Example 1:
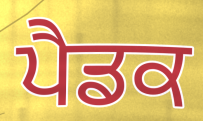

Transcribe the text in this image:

ਪੈਡਕ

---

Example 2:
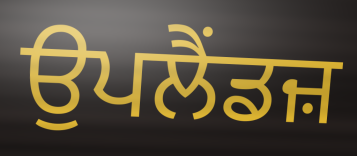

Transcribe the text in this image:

ਉਪਲੈਂਡਜ਼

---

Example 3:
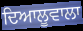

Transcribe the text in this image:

ਦਿਆਲੂਵਾਲਾ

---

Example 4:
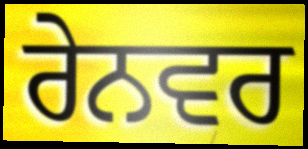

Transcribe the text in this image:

ਰੇਨਵਰ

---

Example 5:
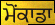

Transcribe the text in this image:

ਮੋਂਕਾਡਾ